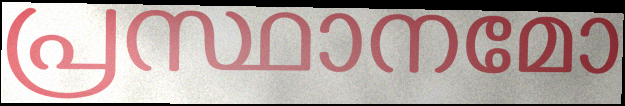
പ്രസ്ഥാനമോ